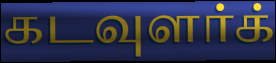
கடவுளர்க்